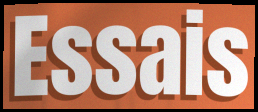
Essais